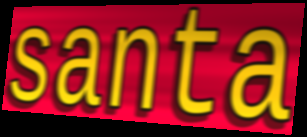
santa